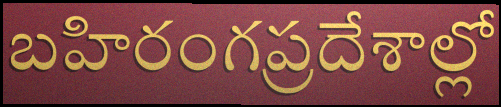
బహిరంగప్రదేశాల్లో